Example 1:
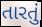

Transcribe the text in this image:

તારતું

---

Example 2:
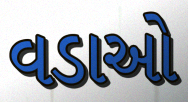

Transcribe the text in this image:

વડાઓ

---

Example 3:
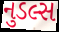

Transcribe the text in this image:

નુડલ્સ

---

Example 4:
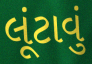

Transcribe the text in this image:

લૂંટાવું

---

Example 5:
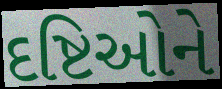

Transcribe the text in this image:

દષ્ટિઓને